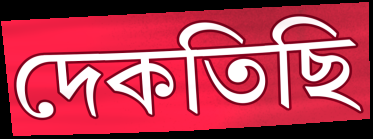
দেকতিছি